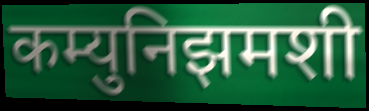
कम्युनिझमशी